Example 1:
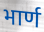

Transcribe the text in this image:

भार्ण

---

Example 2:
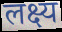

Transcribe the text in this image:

लक्ष्य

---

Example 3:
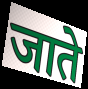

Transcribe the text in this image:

जाते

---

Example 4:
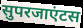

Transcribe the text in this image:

सुपरजाएंटस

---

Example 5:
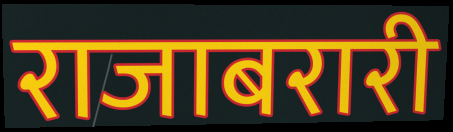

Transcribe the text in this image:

राजाबरारी